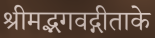
श्रीमद्भगवद्गीताके